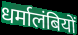
धर्मालंबियों